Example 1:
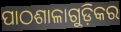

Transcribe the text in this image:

ପାଠଶାଳାଗୁଡ଼ିକର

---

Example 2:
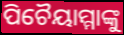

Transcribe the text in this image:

ପିଚୈୟାମ୍ମାଙ୍କୁ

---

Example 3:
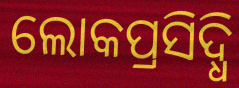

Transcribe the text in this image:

ଲୋକପ୍ରସିଦ୍ଧି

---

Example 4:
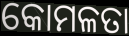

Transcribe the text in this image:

କୋମଳତା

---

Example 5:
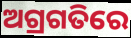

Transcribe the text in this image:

ଅଗ୍ରଗତିରେ